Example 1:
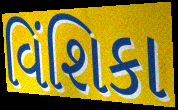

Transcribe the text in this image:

વિંશિકા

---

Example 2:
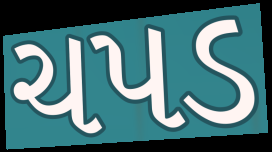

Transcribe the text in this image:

ચપડ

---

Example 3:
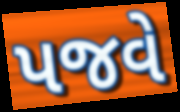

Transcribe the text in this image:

પજવે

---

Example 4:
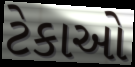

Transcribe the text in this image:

ટેકાઓ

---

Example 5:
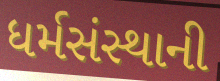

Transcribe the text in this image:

ધર્મસંસ્થાની